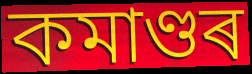
কমাণ্ডৰ